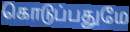
கொடுப்பதுமே